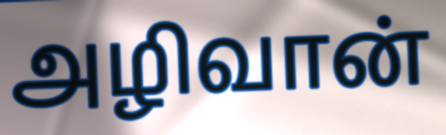
அழிவான்